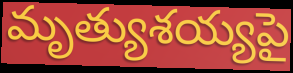
మృత్యుశయ్యపై